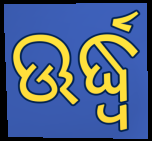
ଊର୍ଦ୍ଧ୍ବ